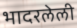
भादरलेली